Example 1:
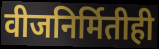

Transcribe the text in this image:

वीजनिर्मितीही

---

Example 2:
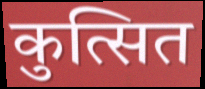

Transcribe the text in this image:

कुत्सित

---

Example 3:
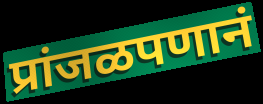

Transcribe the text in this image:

प्रांजळपणानं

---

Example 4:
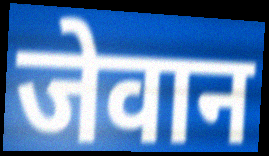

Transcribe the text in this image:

जेवान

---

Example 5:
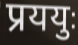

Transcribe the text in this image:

प्रययुः